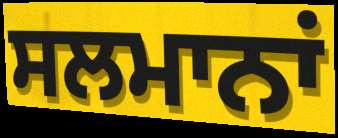
ਸਲਮਾਨਾਂ